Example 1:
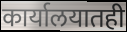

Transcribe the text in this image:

कार्यालयातही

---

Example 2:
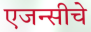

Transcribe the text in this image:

एजन्सीचे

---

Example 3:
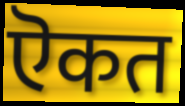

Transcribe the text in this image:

ऎकत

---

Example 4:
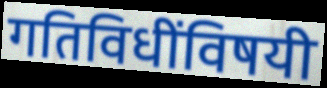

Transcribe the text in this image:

गतिविधींविषयी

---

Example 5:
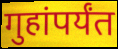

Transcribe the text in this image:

गुहांपर्यंत